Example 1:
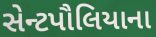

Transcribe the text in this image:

સેન્ટપૌલિયાના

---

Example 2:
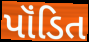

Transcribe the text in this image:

પૉંડિત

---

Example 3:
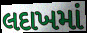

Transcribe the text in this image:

લદાખમાં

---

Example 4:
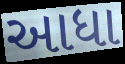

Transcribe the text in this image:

આધા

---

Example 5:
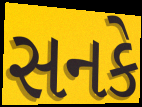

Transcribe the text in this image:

સનકે